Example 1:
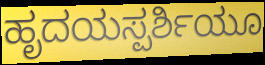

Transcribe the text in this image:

ಹೃದಯಸ್ಪರ್ಶಿಯೂ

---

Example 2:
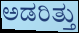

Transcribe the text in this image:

ಅಡರಿತ್ತು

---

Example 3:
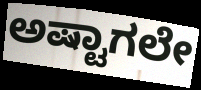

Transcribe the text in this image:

ಅಷ್ಟಾಗಲೇ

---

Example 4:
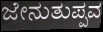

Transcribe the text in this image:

ಜೇನುತುಪ್ಪವ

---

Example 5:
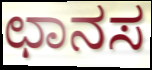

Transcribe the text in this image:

ಛಾನಸ